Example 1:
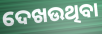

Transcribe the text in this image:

ଦେଖଉଥିବା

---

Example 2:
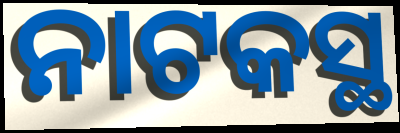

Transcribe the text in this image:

ନାଟକସ୍ଥ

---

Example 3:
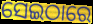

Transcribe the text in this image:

ସେଇଠାରେ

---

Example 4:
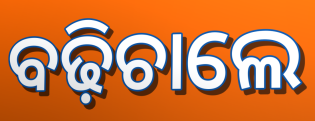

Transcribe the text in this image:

ବଢ଼ିଚାଲେ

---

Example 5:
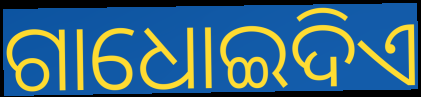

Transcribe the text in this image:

ଗାଧୋଇଦିଏ